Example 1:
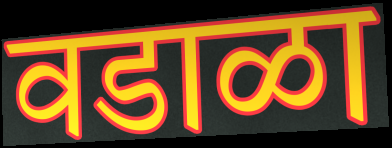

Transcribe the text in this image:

वडाळा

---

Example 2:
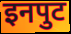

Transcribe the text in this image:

इनपुट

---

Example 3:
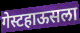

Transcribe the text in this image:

गेस्टहाऊसला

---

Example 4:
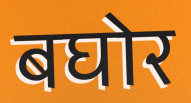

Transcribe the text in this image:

बघोर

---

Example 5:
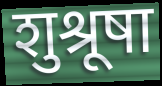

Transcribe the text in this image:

शुश्रूषा